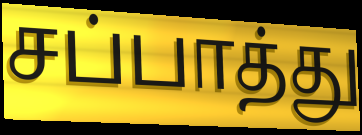
சப்பாத்து